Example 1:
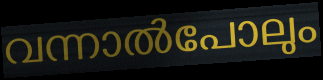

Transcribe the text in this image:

വന്നാൽപോലും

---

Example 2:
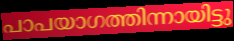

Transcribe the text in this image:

പാപയാഗത്തിന്നായിട്ടു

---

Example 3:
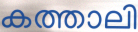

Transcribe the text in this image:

കത്താലി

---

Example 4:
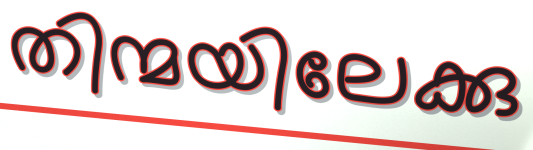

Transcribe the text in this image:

തിന്മയിലേക്കു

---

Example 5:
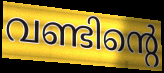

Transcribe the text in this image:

വണ്ടിന്റെ